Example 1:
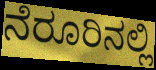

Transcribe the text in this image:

ನೆರೂರಿನಲ್ಲಿ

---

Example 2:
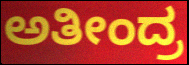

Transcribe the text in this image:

ಅತೀಂದ್ರ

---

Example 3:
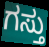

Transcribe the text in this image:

ಗಸ್ತು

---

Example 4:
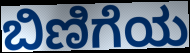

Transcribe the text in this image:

ಬಿಣಿಗೆಯ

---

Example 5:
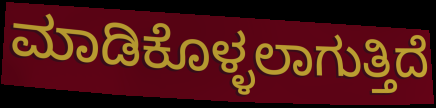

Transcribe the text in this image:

ಮಾಡಿಕೊಳ್ಳಲಾಗುತ್ತಿದೆ